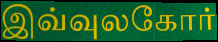
இவ்வுலகோர்